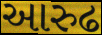
આરુઢ